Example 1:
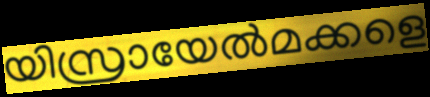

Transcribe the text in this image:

യിസ്രായേൽമക്കളെ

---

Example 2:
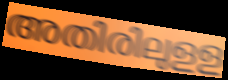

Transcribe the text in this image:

അതിരിലുളള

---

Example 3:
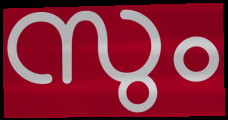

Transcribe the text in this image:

സും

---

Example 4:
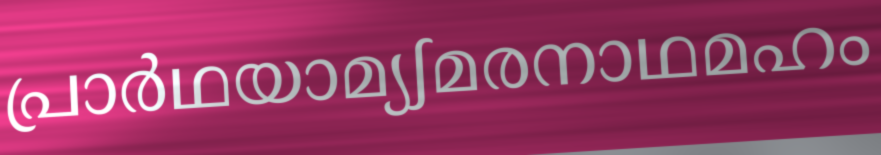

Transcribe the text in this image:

പ്രാർഥയാമ്യഽമരനാഥമഹം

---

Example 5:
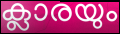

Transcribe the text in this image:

ക്ലാരയും